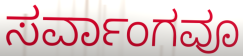
ಸರ್ವಾಂಗವೂ